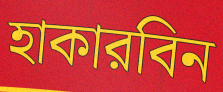
হাকারবিন